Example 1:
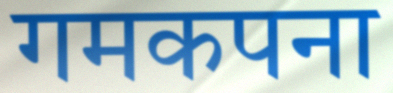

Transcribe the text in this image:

गमकपना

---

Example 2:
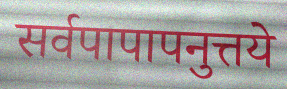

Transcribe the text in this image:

सर्वपापापनुत्तये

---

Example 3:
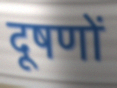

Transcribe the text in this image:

दूषणों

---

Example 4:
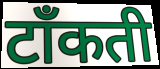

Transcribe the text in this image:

टाँकती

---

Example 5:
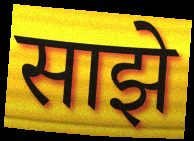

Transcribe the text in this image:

साझे